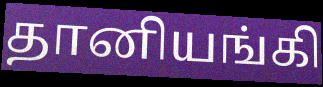
தானியங்கி